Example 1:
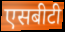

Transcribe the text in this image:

एसबीटी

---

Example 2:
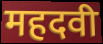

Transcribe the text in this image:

महदवी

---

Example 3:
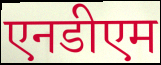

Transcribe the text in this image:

एनडीएम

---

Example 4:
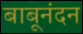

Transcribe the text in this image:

बाबूनंदन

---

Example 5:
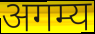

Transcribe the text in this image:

अगम्य